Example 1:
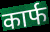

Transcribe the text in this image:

कार्फ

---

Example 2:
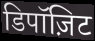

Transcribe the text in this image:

डिपॉज़िट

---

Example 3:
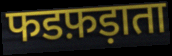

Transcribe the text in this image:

फडफ़ड़ाता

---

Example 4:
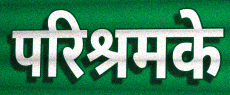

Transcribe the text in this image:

परिश्रमके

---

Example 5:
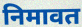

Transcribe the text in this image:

निमावत